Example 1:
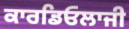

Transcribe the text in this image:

ਕਾਰਡਿਓਲਾਜੀ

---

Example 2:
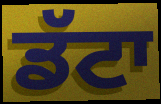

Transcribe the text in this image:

ਡੱਟਾ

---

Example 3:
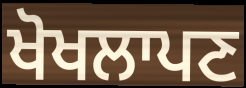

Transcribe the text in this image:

ਖੋਖਲਾਪਣ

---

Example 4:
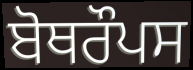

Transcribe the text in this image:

ਬੋਥਰੌਪਸ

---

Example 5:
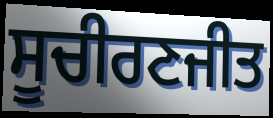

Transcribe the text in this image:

ਸੂਚੀਰਣਜੀਤ